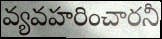
వ్యవహరించారనీ